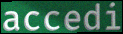
accedi